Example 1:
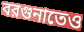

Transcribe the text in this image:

বরগুনাতেও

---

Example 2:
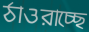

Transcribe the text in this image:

ঠাওরাচ্ছে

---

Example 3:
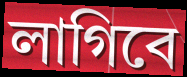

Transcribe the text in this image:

লাগিবে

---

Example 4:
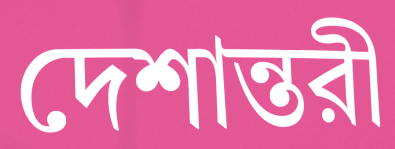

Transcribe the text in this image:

দেশান্তরী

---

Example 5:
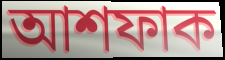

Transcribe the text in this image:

আশফাক